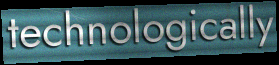
technologically